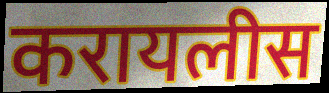
करायलीस